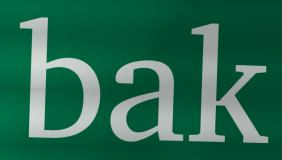
bak